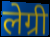
लेग्री